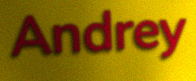
Andrey